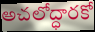
అచలోద్ధారకో